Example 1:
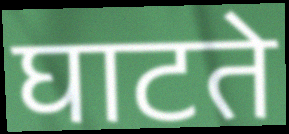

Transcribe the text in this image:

घाटते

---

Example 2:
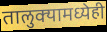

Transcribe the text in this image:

तालुक्यामध्येही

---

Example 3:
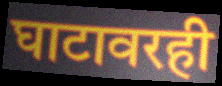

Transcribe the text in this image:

घाटावरही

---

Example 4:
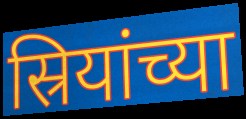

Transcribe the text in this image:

स्रियांच्या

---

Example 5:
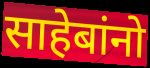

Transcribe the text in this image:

साहेबांनो